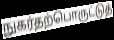
நுகர்தற்பொருட்டுத்